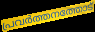
പ്രവർത്തനത്തോട്